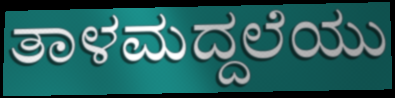
ತಾಳಮದ್ದಲೆಯು